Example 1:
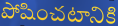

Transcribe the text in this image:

పోషించటానికి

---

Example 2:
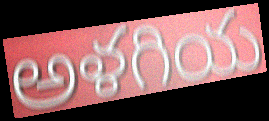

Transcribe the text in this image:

అళగియ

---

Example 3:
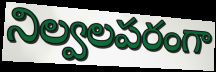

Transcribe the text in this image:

నిల్వలపరంగా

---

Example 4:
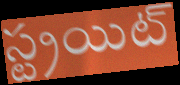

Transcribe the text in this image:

స్ట్రయిట్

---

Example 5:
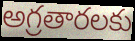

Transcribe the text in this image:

అగ్రతారలకు